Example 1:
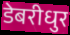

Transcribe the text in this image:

डेबरीधुर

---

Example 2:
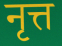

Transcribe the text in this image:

नृत्त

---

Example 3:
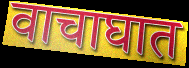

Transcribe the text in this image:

वाचाघात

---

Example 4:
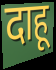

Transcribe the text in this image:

दाहू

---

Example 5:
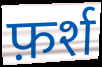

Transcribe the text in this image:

फ़र्श